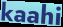
kaahi